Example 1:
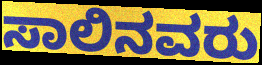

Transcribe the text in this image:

ಸಾಲಿನವರು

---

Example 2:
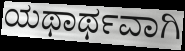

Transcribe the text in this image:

ಯಥಾರ್ಥವಾಗಿ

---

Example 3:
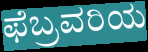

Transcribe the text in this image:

ಫೆಬ್ರವರಿಯ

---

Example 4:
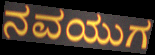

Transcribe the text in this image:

ನವಯುಗ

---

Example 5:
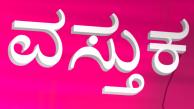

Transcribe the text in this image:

ವಸ್ತುಕ